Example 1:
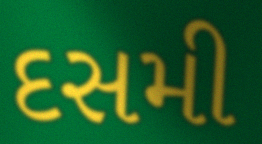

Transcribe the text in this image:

દસમી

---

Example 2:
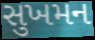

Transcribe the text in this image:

સુખમન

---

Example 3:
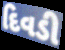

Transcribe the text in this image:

દિવડી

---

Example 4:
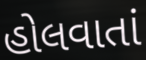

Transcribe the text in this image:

હોલવાતાં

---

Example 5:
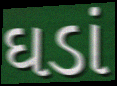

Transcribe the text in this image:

ઘડાં